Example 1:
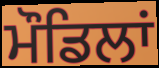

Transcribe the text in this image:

ਮੌਡਿਲਾਂ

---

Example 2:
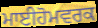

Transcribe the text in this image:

ਮਾਈਹੋਮਵਰਕ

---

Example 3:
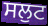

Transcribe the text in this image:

ਸਲੁਟ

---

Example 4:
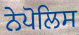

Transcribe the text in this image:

ਨੇਪੋਲਿਸ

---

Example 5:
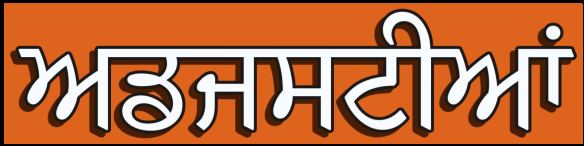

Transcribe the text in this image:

ਅਡਜਸਟੀਆਂ